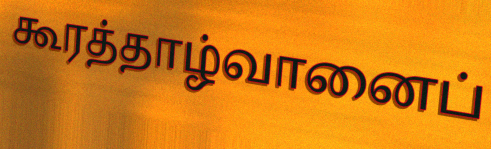
கூரத்தாழ்வானைப்